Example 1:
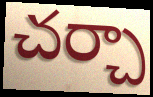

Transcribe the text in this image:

చర్చా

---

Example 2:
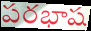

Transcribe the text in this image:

పరభాష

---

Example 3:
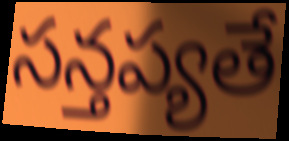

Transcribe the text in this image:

సన్తప్యతే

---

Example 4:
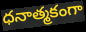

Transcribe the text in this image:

ధనాత్మకంగా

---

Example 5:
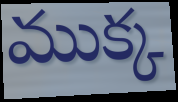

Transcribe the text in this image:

ముక్క